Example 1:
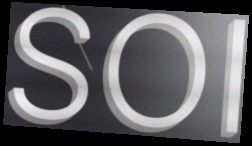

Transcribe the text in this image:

SOI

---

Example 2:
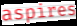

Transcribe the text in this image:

aspires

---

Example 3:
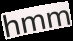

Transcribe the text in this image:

hmm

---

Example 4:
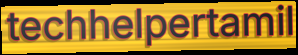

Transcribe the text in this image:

techhelpertamil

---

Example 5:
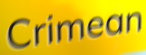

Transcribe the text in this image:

Crimean